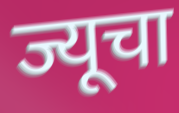
ज्यूचा